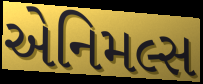
એનિમલ્સ